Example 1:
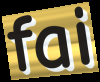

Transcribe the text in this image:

fai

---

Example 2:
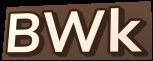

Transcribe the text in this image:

BWk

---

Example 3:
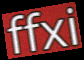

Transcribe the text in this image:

ffxi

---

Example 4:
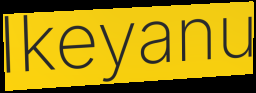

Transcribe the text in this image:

Ikeyanu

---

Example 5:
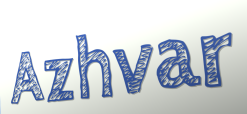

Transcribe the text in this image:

Azhvar